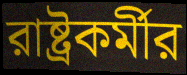
রাষ্ট্রকর্মীর